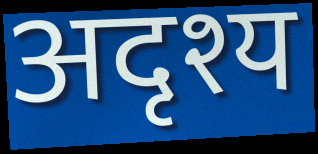
अदृश्य